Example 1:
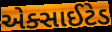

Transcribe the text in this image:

એક્સાઈટેડ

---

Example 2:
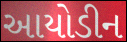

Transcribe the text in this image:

આયોડીન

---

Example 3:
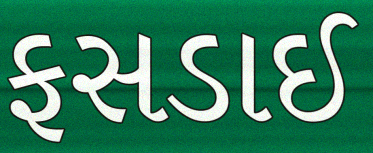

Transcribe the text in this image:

ફસડાઈ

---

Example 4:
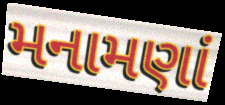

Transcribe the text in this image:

મનામણાં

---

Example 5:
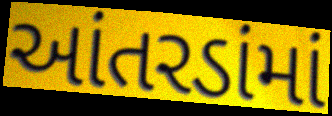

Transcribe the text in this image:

આંતરડાંમાં